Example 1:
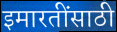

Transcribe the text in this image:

इमारतींसाठी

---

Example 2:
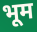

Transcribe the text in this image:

भूम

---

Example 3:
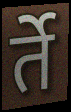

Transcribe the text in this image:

र्ते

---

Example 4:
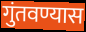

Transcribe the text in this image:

गुंतवण्यास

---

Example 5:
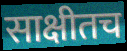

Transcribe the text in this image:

साक्षीतच